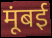
मूंबई